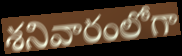
శనివారంలోగా